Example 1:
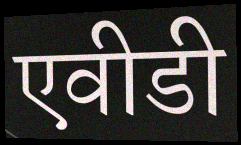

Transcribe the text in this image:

एवीडी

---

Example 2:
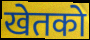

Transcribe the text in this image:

खेतको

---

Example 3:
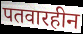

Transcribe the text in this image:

पतवारहीन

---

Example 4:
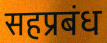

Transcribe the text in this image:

सहप्रबंध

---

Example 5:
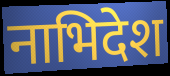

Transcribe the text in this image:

नाभिदेश